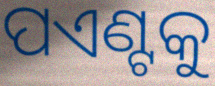
ପଏଣ୍ଟକୁ